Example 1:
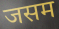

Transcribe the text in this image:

जसम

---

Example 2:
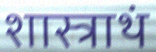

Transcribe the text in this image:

शास्त्राथं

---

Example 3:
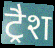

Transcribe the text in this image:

ट्रैश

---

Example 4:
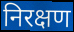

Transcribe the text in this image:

निरक्षण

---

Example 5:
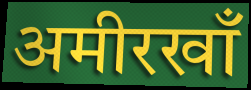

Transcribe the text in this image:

अमीरखाँ